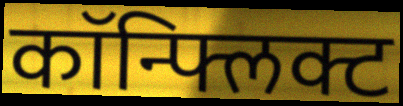
कॉन्फ्लिक्ट